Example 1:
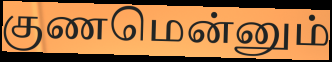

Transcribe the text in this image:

குணமென்னும்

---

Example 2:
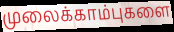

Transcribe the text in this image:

முலைக்காம்புகளை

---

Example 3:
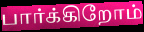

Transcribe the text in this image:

பார்க்கிறோம்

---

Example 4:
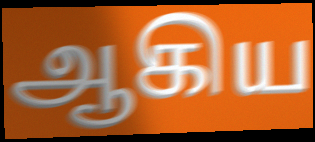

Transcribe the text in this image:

ஆகிய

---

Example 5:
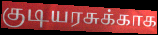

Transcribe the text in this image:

குடியரசுக்காக